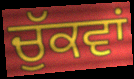
ਚੁੱਕਵਾਂ